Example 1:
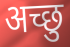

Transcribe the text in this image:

अच्छु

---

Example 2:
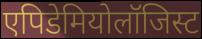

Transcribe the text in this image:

एपिडेमियोलॉजिस्ट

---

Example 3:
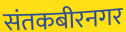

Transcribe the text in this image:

संतकबीरनगर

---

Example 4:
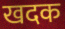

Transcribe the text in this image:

खदक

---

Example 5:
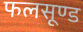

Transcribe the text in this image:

फलसूण्ड